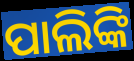
ପାଲିଙ୍କି